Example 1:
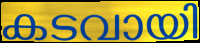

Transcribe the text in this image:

കടവായി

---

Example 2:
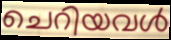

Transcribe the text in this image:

ചെറിയവൾ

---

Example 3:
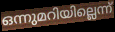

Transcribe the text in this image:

ഒന്നുമറിയില്ലെന്ന്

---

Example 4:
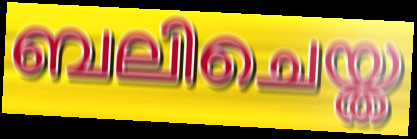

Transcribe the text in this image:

ബലിചെയ്ത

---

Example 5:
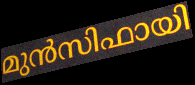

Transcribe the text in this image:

മുൻസിഫായി